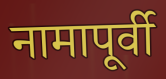
नामापूर्वी